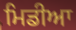
ਮਿਡੀਆ